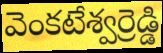
వెంకటేశ్వర్రెడ్డి